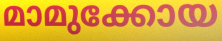
മാമുക്കോയ